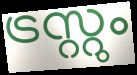
ട്രസ്റ്റും